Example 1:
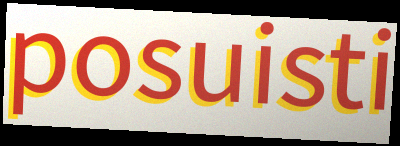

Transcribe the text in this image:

posuisti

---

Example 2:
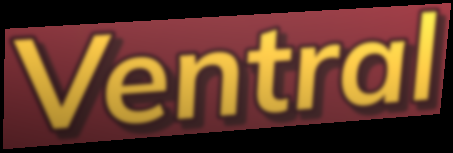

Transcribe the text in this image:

Ventral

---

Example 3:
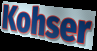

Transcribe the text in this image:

Kohser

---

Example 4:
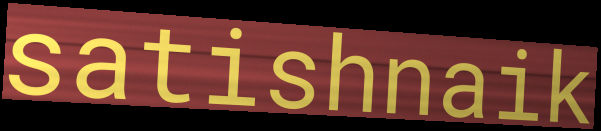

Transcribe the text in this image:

satishnaik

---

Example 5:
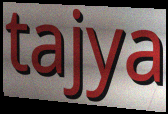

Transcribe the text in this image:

tajya